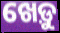
ଖେଡ଼ୁ